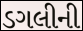
ડગલીની